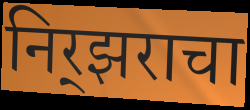
निर्झराचा